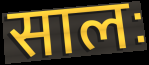
सालः